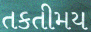
તકતીમય